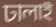
ঢালাই